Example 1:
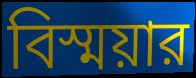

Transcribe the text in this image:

বিস্ময়ার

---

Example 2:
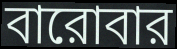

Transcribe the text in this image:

বারোবার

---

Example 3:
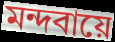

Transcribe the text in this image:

মন্দবায়ে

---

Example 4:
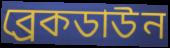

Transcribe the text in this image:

ব্রেকডাউন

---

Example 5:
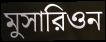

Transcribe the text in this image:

মুসারিওন